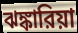
ঝঙ্কারিয়া